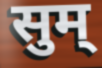
सुम्